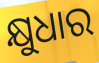
କ୍ଷୁଧାର